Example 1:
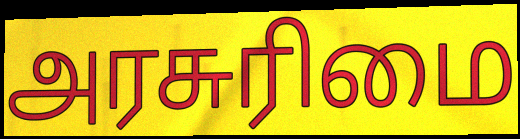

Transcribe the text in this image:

அரசுரிமை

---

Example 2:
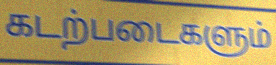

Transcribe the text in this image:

கடற்படைகளும்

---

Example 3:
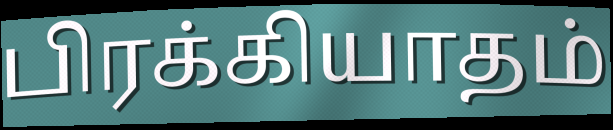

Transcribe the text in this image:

பிரக்கியாதம்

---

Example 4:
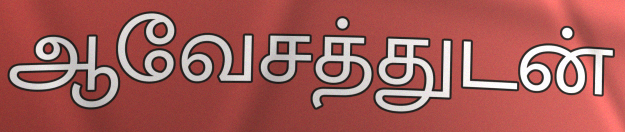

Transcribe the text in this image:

ஆவேசத்துடன்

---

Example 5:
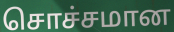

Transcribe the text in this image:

சொச்சமான